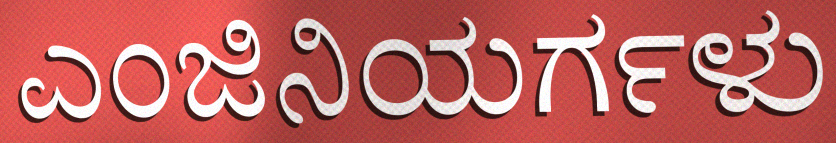
ಎಂಜಿನಿಯರ್ಗಳು